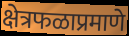
क्षेत्रफळाप्रमाणे